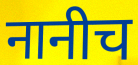
नानीच